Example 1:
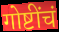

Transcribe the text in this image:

गोष्टींचं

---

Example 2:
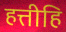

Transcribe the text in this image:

हत्तीहि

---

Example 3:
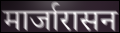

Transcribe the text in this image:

मार्जारासन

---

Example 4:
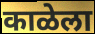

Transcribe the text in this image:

काळेला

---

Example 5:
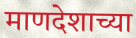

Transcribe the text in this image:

माणदेशाच्या